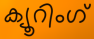
ക്യൂറിംഗ്